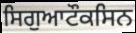
ਸਿਗੁਆਟੌਕਸਿਨ